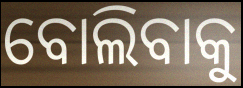
ବୋଲିବାକୁ